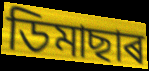
ডিমাছাৰ